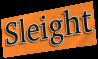
Sleight